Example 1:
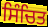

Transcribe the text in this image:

ਸਿੰਚਿਤ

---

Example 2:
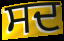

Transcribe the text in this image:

ਸਦ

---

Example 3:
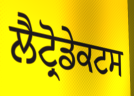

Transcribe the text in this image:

ਲੈਟ੍ਰੋਡੇਕਟਸ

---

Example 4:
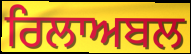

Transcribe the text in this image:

ਰਿਲਾਅਬਲ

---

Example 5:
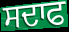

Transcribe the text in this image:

ਸਦਾਫ